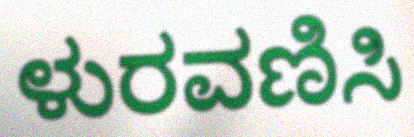
ಳುರವಣಿಸಿ